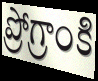
ప్రోగ్రాంకి